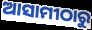
ଆସାମୀଠାରୁ